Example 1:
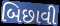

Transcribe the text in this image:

બિછાવી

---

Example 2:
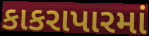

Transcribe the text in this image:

કાકરાપારમાં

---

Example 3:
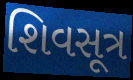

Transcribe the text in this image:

શિવસૂત્ર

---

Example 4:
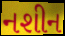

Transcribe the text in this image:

નશીન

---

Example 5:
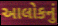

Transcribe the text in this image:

આલોકનું